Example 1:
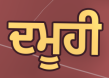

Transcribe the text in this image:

ਦਮੂਹੀ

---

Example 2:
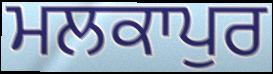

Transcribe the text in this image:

ਮਲਕਾਪੁਰ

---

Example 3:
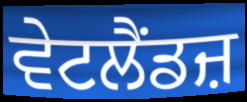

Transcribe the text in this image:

ਵੇਟਲੈਂਡਜ਼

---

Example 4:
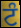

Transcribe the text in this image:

ਟੰ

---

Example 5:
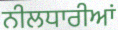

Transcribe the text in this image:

ਨੀਲਧਾਰੀਆਂ